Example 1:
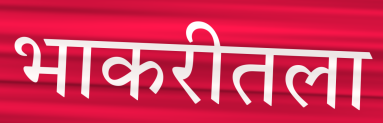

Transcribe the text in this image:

भाकरीतला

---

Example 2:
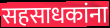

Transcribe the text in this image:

सहसाधकांना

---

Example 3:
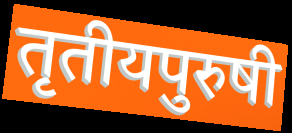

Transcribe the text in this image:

तृतीयपुरुषी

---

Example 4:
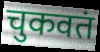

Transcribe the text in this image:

चुकवतं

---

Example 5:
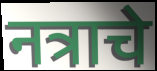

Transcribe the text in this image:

नत्राचे